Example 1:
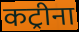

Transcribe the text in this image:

कट्रीना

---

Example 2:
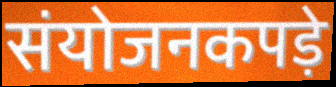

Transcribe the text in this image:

संयोजनकपड़े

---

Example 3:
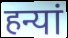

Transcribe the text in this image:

हन्यां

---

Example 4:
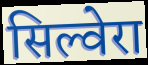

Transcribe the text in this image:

सिल्वेरा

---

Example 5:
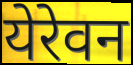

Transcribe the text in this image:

येरेवन